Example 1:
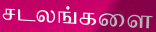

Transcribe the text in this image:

சடலங்களை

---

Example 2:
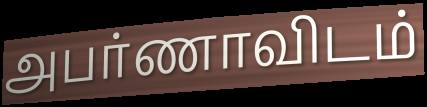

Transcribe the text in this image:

அபர்ணாவிடம்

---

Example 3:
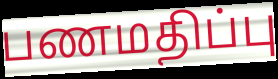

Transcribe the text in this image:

பணமதிப்பு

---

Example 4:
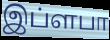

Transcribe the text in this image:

இப்ளபா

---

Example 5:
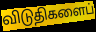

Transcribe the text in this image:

விடுதிகளைப்